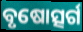
ବୃଷୋତ୍ସର୍ଗ